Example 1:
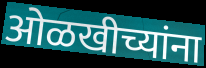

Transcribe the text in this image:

ओळखीच्यांना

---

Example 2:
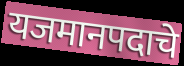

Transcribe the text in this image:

यजमानपदाचे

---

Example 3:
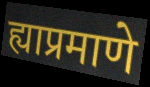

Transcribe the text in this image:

ह्याप्रमाणे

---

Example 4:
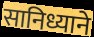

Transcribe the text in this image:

सानिध्याने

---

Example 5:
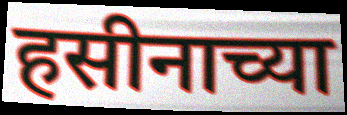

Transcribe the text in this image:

हसीनाच्या